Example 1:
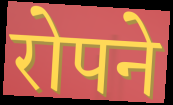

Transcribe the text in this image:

रोपने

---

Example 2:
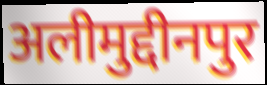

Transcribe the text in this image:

अलीमुद्दीनपुर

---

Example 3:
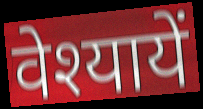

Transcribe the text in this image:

वेश्यायें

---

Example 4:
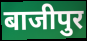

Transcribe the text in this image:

बाजीपुर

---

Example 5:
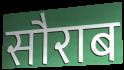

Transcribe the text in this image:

सौराब